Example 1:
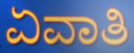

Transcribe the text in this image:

ಏವಾತಿ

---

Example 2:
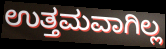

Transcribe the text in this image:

ಉತ್ತಮವಾಗಿಲ್ಲ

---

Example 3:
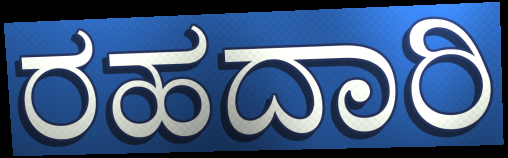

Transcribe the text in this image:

ರಹದಾರಿ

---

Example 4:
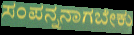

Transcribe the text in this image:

ಸಂಪನ್ನನಾಗಬೇಕು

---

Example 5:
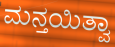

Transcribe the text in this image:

ಮನ್ತಯಿತ್ವಾ